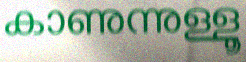
കാണുന്നുള്ളൂ